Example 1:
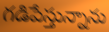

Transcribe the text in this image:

గడిపేస్తున్నాను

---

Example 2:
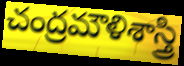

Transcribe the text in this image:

చంద్రమౌళిశాస్త్రి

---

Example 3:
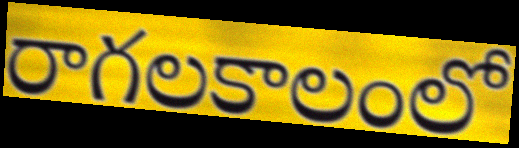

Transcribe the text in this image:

రాగలకాలంలో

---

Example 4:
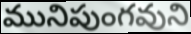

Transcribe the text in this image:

మునిపుంగవుని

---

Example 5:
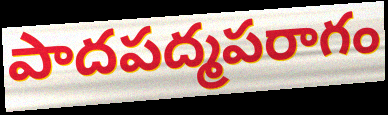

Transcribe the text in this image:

పాదపద్మపరాగం